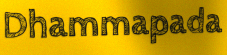
Dhammapada